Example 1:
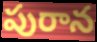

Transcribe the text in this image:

పురాన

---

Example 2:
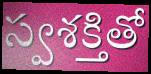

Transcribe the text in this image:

స్వశక్తితో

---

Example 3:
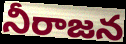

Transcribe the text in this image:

నీరాజన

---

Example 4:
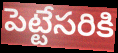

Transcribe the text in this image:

పెట్టేసరికి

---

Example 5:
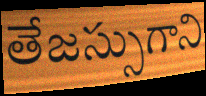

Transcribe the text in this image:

తేజస్సుగాని